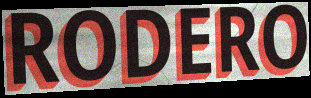
RODERO